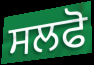
ਸਲਫੋ